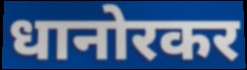
धानोरकर